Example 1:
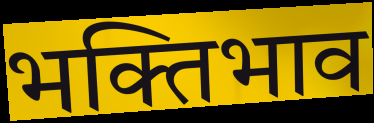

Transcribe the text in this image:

भक्तिभाव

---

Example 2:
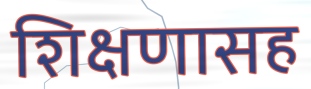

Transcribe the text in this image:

शिक्षणासह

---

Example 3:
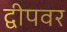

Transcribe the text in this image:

द्वीपवर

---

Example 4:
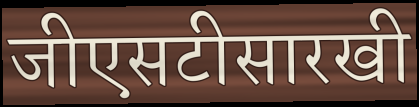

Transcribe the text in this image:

जीएसटीसारखी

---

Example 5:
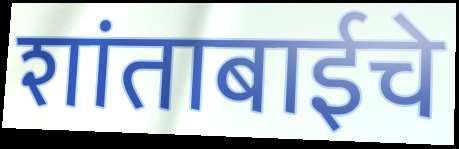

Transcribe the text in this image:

शांताबाईचे